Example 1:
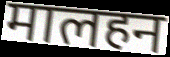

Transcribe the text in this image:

मालहन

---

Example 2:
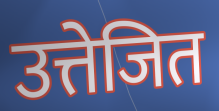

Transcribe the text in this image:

उत्तेजित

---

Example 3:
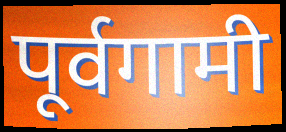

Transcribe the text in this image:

पूर्वगामी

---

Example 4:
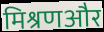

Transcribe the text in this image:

मिश्रणऔर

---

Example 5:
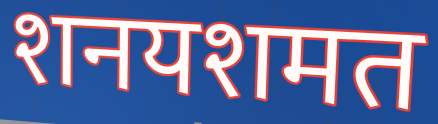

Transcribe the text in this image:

शनयशमत